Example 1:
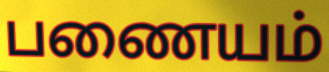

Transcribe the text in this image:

பணையம்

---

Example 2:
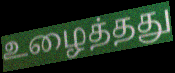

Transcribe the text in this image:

உழைத்தது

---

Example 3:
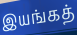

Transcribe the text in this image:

இயங்கத்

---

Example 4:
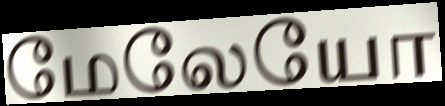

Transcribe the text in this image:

மேலேயோ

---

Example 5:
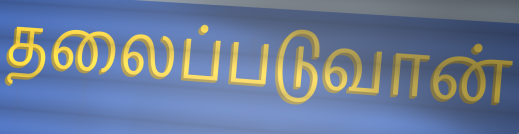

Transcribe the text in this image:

தலைப்படுவான்